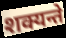
शक्यन्ते